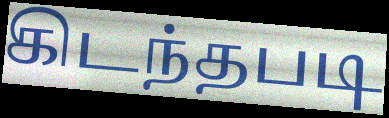
கிடந்தபடி